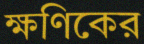
ক্ষণিকের